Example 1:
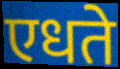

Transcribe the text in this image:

एधते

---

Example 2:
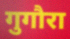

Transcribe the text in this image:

गुगौरा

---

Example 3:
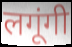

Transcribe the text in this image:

लगूंगी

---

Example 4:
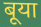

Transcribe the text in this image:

बूया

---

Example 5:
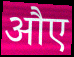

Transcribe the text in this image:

औए